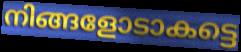
നിങ്ങളോടാകട്ടെ